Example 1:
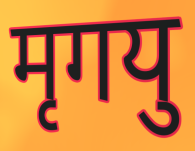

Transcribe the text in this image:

मृगयु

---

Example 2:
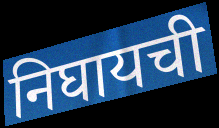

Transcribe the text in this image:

निघायची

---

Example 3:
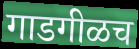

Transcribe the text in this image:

गाडगीळच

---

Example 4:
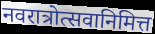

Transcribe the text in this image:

नवरात्रोत्सवानिमित्त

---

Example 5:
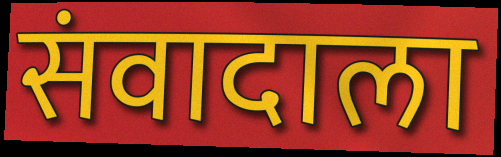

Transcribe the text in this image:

संवादाला